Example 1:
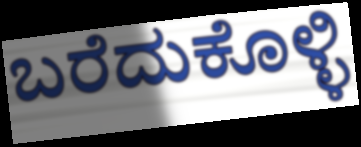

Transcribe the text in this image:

ಬರೆದುಕೊಳ್ಳಿ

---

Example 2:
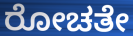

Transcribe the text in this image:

ರೋಚತೇ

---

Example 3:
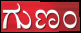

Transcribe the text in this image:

ಗುಣಂ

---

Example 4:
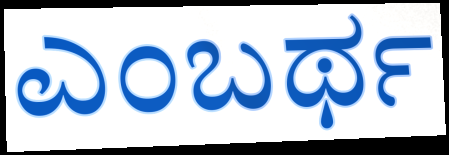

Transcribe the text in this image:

ಎಂಬರ್ಥ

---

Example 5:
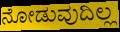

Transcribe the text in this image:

ನೋಡುವುದಿಲ್ಲ